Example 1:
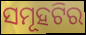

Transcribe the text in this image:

ସମୂହଟିର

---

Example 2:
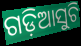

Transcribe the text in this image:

ଗଡ଼ିଆସୁଚି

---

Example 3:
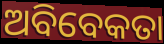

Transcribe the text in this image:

ଅବିବେକତା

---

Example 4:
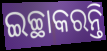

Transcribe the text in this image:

ଇଚ୍ଛାକରନ୍ତି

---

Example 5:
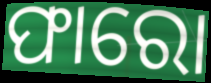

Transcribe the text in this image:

ଫାରୋ